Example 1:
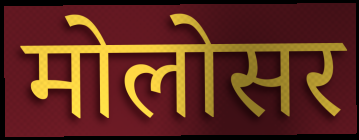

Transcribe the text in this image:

मोलोसर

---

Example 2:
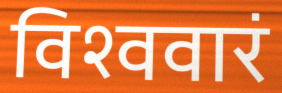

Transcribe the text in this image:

विश्ववारं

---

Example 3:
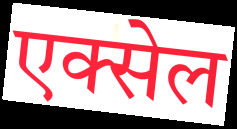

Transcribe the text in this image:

एक्‍सेल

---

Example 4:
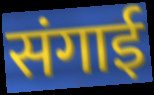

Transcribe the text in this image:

संगाई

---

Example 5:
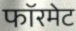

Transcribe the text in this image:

फॉरमेट